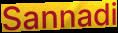
Sannadi